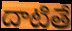
దాటితే